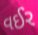
વઈર